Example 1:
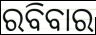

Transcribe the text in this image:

ରବିବାର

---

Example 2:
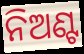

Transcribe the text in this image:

ନିଅଣ୍ଟ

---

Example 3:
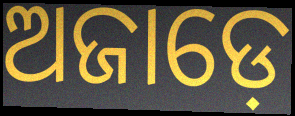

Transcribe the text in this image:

ଅଜାଡ଼େ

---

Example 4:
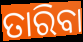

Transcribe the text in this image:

ତାରିବା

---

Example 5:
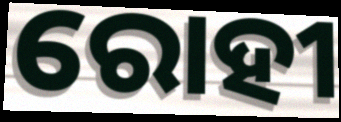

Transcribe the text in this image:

ରୋହୀ